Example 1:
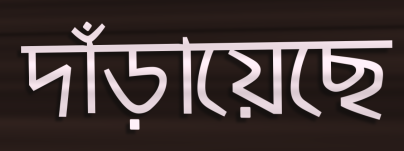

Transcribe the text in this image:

দাঁড়ায়েছে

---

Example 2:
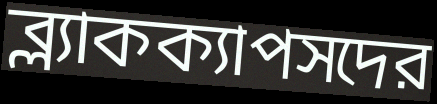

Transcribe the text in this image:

ব্ল্যাকক্যাপসদের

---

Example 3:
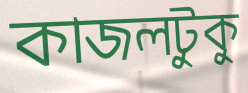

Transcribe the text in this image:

কাজলটুকু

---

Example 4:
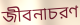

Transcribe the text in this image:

জীবনাচরণ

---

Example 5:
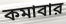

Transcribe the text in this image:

কমাবার